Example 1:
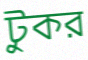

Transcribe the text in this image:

টুকর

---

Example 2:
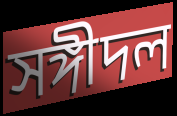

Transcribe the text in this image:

সঙ্গীদল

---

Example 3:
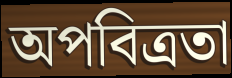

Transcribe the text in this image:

অপবিত্রতা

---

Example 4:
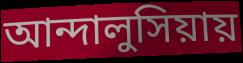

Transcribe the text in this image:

আন্দালুসিয়ায়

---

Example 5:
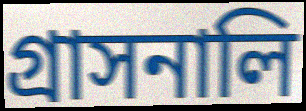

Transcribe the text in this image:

গ্রাসনালি